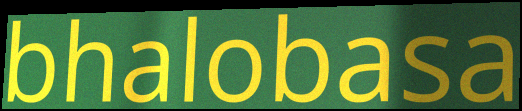
bhalobasa